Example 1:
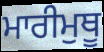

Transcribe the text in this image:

ਮਾਰੀਮੁਥੂ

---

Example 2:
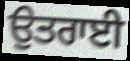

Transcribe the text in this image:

ਉਤਰਾਈ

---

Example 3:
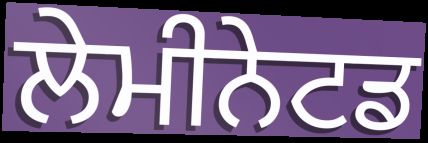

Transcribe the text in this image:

ਲੇਮੀਨੇਟਡ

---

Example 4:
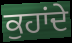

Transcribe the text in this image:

ਕੁਹਾਂਦੇ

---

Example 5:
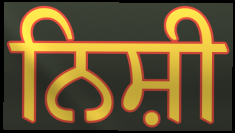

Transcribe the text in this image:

ਨਿਸ਼ੀ